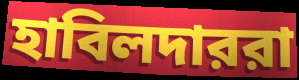
হাবিলদাররা